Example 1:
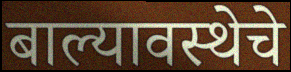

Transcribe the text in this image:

बाल्यावस्थेचे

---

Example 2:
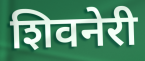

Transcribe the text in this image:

शिवनेरी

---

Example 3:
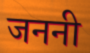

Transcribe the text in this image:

जननी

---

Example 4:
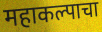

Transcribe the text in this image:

महाकल्पाचा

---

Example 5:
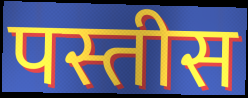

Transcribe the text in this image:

पस्तीस